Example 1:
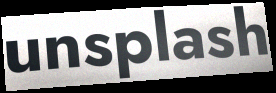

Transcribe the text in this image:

unsplash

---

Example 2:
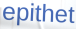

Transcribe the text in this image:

epithet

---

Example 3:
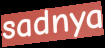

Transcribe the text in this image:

sadnya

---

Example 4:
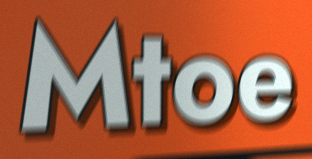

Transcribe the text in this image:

Mtoe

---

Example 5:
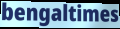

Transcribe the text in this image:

bengaltimes